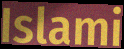
Islami